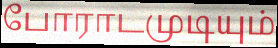
போராடமுடியும்